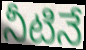
నీటినే